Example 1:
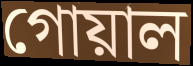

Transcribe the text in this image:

গোয়াল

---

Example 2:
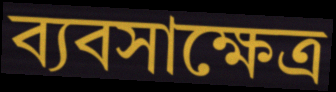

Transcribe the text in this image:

ব্যবসাক্ষেত্র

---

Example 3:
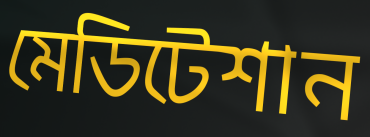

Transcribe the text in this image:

মেডিটেশান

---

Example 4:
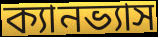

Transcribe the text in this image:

ক্যানভ্যাস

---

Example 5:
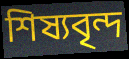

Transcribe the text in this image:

শিষ্যবৃন্দ